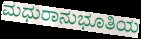
ಮಧುರಾನುಭೂತಿಯ